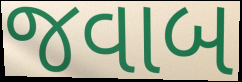
જવાબ